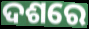
ଦଶରେ